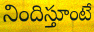
నిందిస్తూంటే